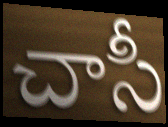
చాసీ